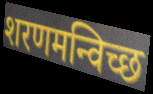
शरणमन्विच्छ